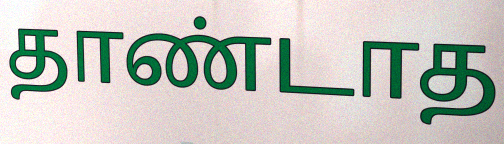
தாண்டாத